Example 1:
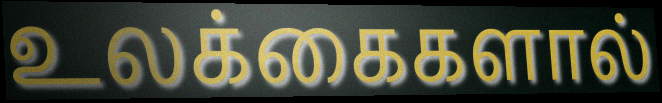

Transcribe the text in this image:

உலக்கைகளால்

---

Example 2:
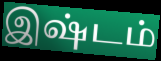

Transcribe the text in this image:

இஷ்டம்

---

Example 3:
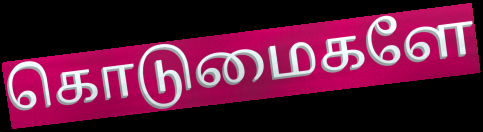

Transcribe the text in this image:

கொடுமைகளே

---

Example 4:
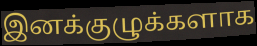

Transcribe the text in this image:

இனக்குழுக்களாக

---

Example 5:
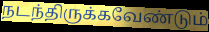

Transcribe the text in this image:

நடந்திருக்கவேண்டும்